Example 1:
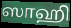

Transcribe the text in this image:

ஸாஹி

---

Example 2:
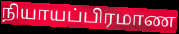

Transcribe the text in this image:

நியாயப்பிரமாண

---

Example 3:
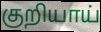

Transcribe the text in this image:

குறியாய்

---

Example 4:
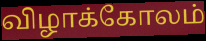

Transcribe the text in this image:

விழாக்கோலம்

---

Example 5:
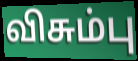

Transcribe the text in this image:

விசும்பு